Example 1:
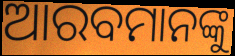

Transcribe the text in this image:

ଆରବମାନଙ୍କୁ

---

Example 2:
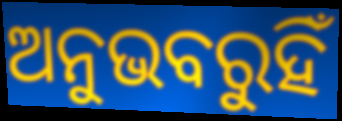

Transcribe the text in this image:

ଅନୁଭବରୁହିଁ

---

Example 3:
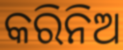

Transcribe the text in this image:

କରିନିଅ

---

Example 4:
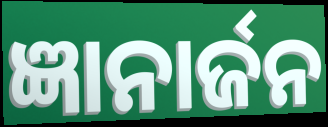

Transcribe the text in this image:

ଜ୍ଞାନାର୍ଜନ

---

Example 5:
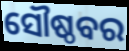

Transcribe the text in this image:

ସୌଷ୍ଠବର